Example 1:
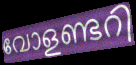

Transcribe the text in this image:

വോളണ്ടറി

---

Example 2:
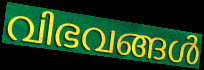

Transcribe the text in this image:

വിഭവങ്ങൾ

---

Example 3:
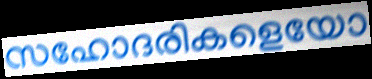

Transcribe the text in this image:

സഹോദരികളെയോ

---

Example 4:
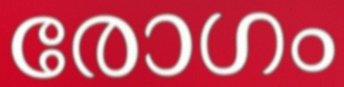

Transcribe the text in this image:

രോഗം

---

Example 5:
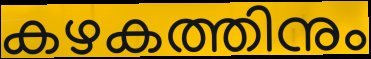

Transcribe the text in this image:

കഴകത്തിനും